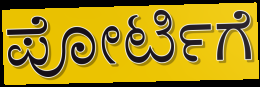
ಪೋರ್ಟಿಗೆ